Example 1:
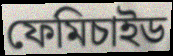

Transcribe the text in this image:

ফেমিচাইড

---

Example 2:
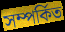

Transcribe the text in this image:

সম্পৰ্কিত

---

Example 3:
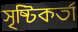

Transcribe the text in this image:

সৃষ্টিকৰ্তা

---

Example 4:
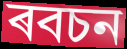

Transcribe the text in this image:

ৰবচন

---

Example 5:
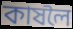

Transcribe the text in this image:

কাষলৈ